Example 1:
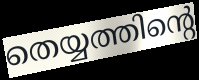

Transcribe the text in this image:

തെയ്യത്തിന്റെ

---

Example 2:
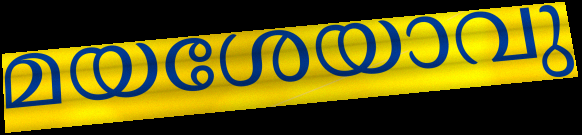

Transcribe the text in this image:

മയശേയാവു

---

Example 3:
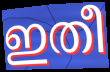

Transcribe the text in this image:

ഇതീ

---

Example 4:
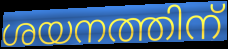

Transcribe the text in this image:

ശയനത്തിന്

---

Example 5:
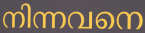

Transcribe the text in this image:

നിന്നവനെ